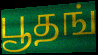
பூதங்